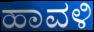
ಹಾವಳಿ